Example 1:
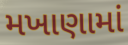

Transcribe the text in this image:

મખાણામાં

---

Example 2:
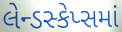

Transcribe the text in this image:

લેન્ડસ્કેપ્સમાં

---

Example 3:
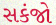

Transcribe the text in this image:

સકંજો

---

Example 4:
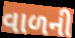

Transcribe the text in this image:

વાળની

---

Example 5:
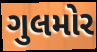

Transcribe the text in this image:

ગુલમોર